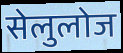
सेलुलोज